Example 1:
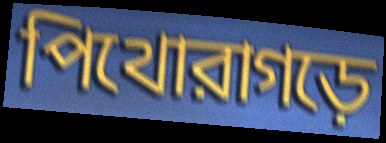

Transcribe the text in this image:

পিথোরাগড়ে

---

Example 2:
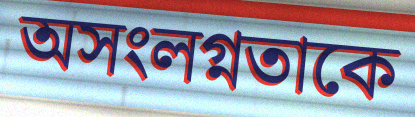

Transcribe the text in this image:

অসংলগ্নতাকে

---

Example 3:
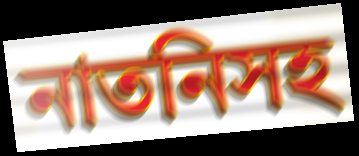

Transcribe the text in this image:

নাতনিসহ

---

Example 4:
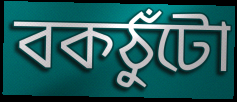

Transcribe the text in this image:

বকঠুঁটো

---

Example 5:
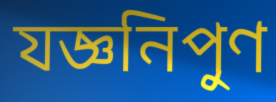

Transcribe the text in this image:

যজ্ঞনিপুণ